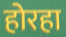
होरहा